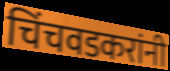
चिंचवडकरांनी